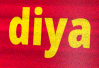
diya